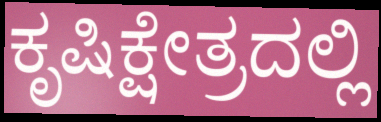
ಕೃಷಿಕ್ಷೇತ್ರದಲ್ಲಿ